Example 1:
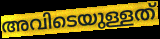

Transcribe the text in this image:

അവിടെയുള്ളത്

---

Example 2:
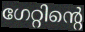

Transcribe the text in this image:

ഗേറ്റിന്റെ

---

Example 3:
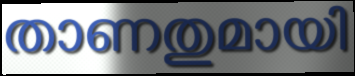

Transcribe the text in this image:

താണതുമായി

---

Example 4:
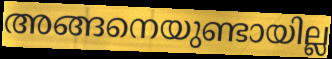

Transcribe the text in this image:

അങ്ങനെയുണ്ടായില്ല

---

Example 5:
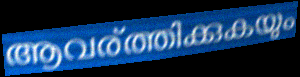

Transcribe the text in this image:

ആവര്ത്തിക്കുകയും